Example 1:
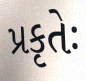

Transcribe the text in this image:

પ્રકૃતેઃ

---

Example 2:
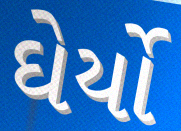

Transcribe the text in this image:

ઘેર્યો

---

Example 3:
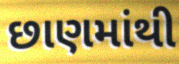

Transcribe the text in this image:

છાણમાંથી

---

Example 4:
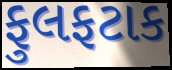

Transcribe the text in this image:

ફુલફટાક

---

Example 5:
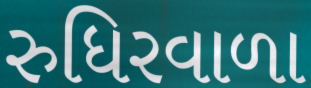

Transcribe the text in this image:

રુધિરવાળા